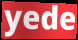
yede